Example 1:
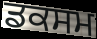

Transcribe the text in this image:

ਡਕਸਮ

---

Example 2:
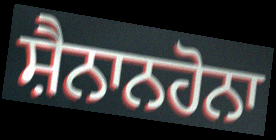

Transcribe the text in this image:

ਸ਼ੈਨਾਨਹੋਨਾ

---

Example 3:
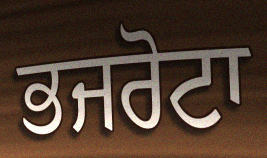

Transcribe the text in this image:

ਭਜਰੋਟਾ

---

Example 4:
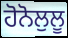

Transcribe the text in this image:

ਹੋਨੋਲੁਲੂ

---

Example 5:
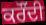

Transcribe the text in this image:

ਕਰੌਂਦੀ